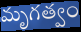
మృగత్వం